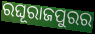
ରଘୂରାଜପୁରର